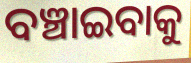
ବଞ୍ଚାଇବାକୁ